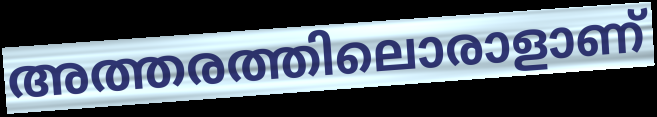
അത്തരത്തിലൊരാളാണ്